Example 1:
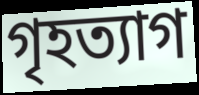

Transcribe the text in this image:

গৃহত্যাগ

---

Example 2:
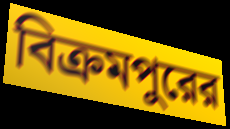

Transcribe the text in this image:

বিক্রমপুরের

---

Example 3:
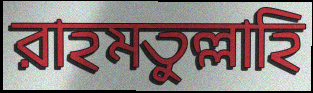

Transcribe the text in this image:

রাহমতুল্লাহি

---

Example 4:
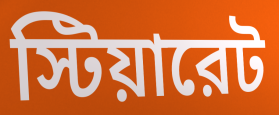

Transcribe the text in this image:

স্টিয়ারেট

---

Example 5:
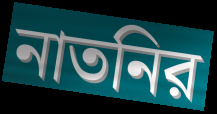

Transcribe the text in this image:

নাতনির